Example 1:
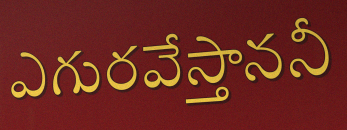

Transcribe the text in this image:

ఎగురవేస్తాననీ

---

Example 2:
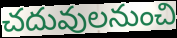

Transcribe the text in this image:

చదువులనుంచి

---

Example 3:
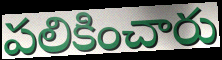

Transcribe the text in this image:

పలికించారు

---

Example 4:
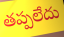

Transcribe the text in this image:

తప్పలేదు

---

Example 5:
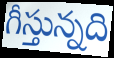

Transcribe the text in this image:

గీస్తున్నది